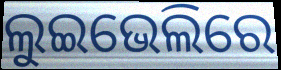
ଲୁଇଭେଲିରେ